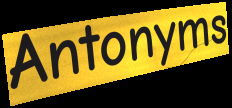
Antonyms